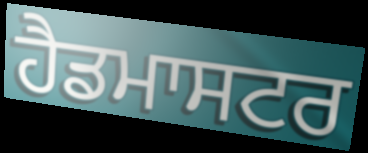
ਹੈਡਮਾਸਟਰ